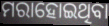
ମରାହୋଇଥିବା